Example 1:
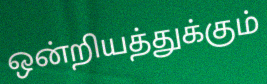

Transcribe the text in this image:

ஒன்றியத்துக்கும்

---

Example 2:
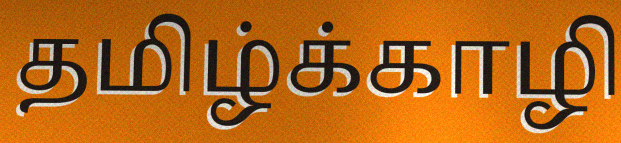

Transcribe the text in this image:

தமிழ்க்காழி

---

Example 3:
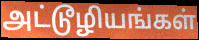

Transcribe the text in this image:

அட்டூழியங்கள்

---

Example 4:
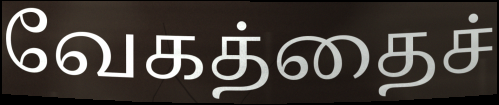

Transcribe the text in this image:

வேகத்தைச்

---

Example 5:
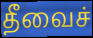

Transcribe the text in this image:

தீவைச்